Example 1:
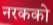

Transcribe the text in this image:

नरकको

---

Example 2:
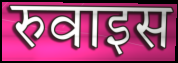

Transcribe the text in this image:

रुवाइस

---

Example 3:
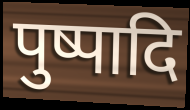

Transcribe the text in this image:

पुष्पादि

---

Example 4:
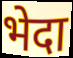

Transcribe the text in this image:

भेदा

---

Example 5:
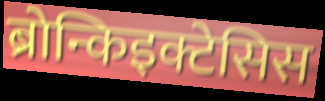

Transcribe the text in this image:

ब्रोन्किइक्टेसिस